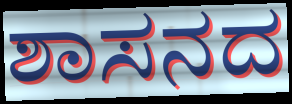
ಶಾಸನದ